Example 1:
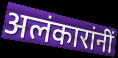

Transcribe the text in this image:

अलंकारांनीं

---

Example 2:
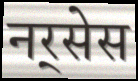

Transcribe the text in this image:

नर्सेस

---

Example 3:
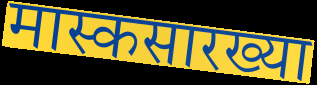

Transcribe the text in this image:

मास्कसारख्या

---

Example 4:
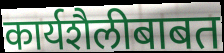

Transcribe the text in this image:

कार्यशैलीबाबत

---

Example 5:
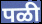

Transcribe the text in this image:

पळी